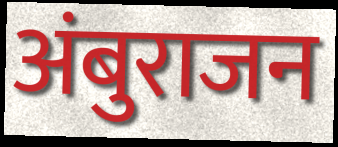
अंबुराजन